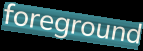
foreground